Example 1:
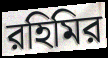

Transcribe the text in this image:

রহিমির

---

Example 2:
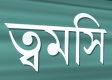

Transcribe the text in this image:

ত্বমসি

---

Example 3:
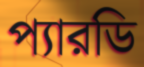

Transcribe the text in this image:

প্যারডি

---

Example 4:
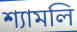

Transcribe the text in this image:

শ্যামলি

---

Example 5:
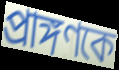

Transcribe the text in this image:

প্রাঙ্গণকে